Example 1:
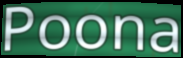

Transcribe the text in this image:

Poona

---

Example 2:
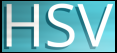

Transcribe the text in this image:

HSV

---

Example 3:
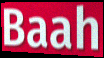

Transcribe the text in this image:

Baah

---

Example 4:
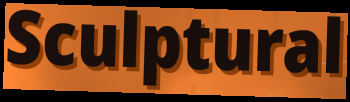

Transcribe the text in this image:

Sculptural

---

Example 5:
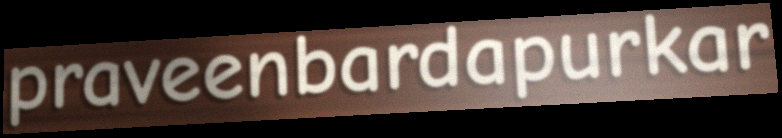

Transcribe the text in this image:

praveenbardapurkar